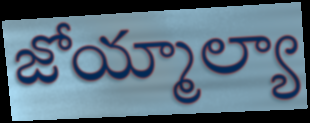
జోయ్మాల్యా